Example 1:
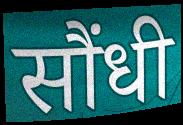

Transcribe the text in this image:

सौंधी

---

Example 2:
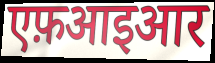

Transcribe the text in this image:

एफ़आइआर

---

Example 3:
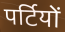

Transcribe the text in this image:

पर्टियों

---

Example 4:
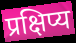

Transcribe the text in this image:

प्रक्षिप्य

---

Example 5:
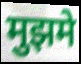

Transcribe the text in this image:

मुझमे